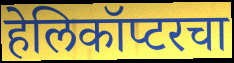
हेलिकॉप्टरचा